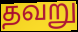
தவறு